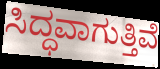
ಸಿದ್ಧವಾಗುತ್ತಿವೆ